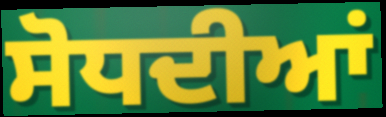
ਸੋਧਦੀਆਂ